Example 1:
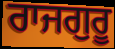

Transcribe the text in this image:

ਰਾਜਗੁਰੂ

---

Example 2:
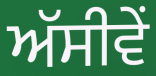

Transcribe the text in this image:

ਅੱਸੀਵੇਂ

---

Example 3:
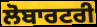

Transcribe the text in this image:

ਲੋਬਾਰਟਰੀ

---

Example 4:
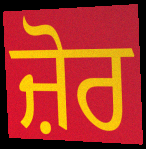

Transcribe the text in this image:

ਜ਼ੋਰ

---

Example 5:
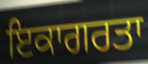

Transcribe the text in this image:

ਇਕਾਗਰਤਾ